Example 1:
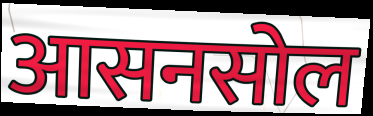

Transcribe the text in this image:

आसनसोल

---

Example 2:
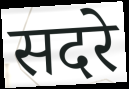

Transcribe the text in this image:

सदरे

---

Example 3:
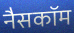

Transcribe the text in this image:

नैसकॉम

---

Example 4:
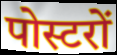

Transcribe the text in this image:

पोस्टरों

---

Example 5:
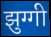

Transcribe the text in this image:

झुग्गी